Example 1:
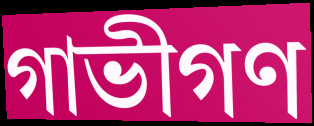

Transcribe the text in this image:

গাভীগণ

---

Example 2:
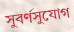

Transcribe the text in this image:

সুবর্ণসুযোগ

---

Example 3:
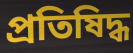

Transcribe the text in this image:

প্রতিষিদ্ধ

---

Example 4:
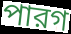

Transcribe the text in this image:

পারগ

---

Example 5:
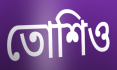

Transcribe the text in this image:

তোশিও